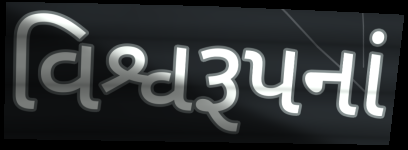
વિશ્વરૂપનાં